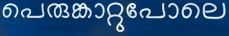
പെരുങ്കാറ്റുപോലെ